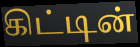
கிட்டின்